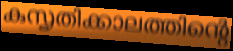
കുസൃതിക്കാലത്തിന്റെ